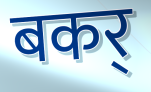
बकर्